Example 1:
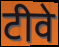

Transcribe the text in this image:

टीवे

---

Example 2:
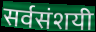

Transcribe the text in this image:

सर्वसंशयी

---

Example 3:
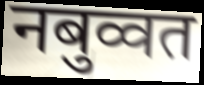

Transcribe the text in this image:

नबुव्वत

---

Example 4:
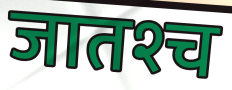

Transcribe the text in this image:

जातश्च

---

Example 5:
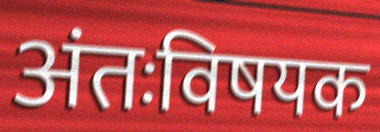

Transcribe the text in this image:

अंतःविषयक